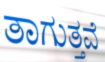
ತಾಗುತ್ತವೆ